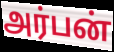
அர்பன்